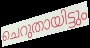
ചെറുതായിട്ടും